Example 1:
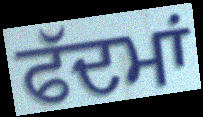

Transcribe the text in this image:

ਫੱਦਮਾਂ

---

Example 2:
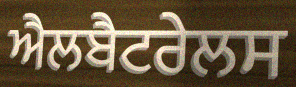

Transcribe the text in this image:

ਐਲਬੈਟਰੇਲਸ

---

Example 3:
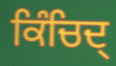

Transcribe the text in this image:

ਕਿੰਚਿਦ੍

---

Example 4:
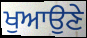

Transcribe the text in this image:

ਖੁਆਉਣੇ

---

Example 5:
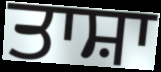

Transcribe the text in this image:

ਤਾਸ਼ਾ